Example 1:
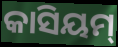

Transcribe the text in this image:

କାସିୟମ୍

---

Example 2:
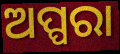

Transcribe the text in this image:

ଅପ୍ପରା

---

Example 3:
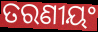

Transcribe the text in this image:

ତରଣୀୟଂ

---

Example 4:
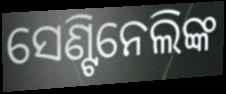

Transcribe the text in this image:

ସେଣ୍ଟିନେଲିଙ୍କ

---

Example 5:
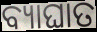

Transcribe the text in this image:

ବ୍ୟାଘାତ